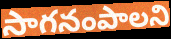
సాగనంపాలని